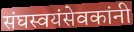
संघस्वयंसेवकांनी